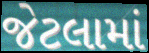
જેટલામાં